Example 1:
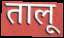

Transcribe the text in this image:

तालू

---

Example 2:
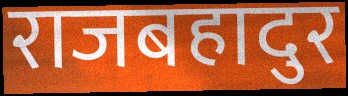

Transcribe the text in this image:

राजबहादुर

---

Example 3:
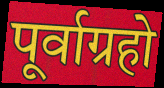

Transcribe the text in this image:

पूर्वाग्रहो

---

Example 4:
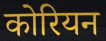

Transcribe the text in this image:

कोरियन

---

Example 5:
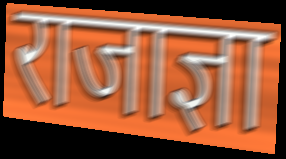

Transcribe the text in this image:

राजाज्ञा